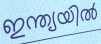
ഇന്ത്യയിൽ